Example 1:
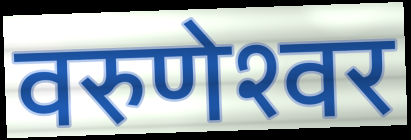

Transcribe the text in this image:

वरुणेश्वर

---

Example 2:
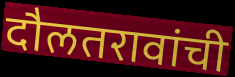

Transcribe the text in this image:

दौलतरावांची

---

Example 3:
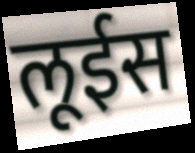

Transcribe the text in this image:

लूईस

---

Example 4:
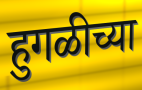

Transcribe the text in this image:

हुगळीच्या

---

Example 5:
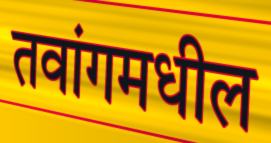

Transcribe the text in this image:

तवांगमधील